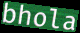
bhola